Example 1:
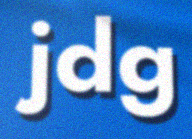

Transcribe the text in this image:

jdg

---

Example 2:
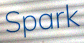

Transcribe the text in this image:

Spark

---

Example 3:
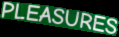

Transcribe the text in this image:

PLEASURES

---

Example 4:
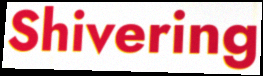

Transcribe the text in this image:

Shivering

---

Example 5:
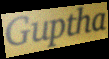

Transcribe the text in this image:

Guptha